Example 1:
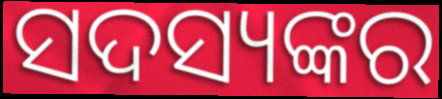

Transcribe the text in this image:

ସଦସ୍ୟଙ୍କର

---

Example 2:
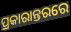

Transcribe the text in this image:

ପ୍ରକାରାନ୍ତରରେ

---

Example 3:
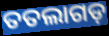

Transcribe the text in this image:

ତତଲାଗଡ଼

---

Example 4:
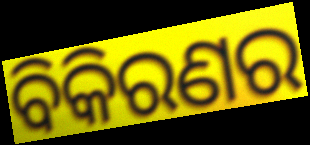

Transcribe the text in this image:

ବିକିରଣର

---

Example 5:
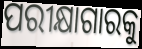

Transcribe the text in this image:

ପରୀକ୍ଷାଗାରକୁ